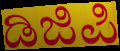
ಡಿಜಿಪಿ